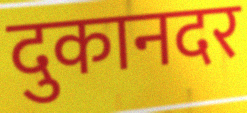
दुकानदर